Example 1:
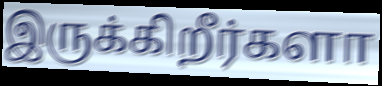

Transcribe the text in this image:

இருக்கிறீர்களா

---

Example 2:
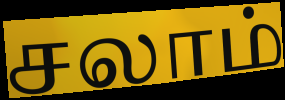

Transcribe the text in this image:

சலாம்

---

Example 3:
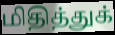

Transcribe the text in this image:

மிதித்துக்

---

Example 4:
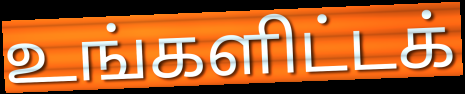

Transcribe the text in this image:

உங்களிட்டக்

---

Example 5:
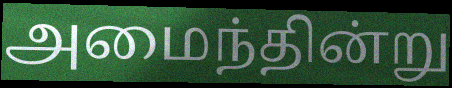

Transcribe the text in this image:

அமைந்தின்று